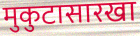
मुकुटासारखा